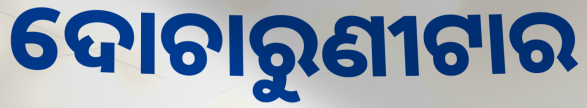
ଦୋଚାରୁଣୀଟାର